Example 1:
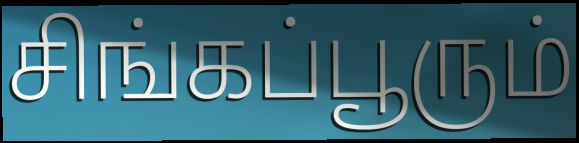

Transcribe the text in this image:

சிங்கப்பூரும்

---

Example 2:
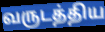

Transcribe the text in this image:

வருடத்திய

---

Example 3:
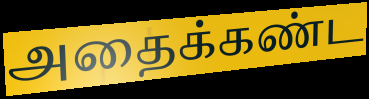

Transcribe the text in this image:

அதைக்கண்ட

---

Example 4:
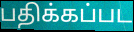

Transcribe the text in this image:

பதிக்கப்பட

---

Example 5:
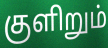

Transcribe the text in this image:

குளிறும்